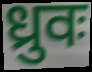
ध्रुवः